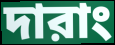
দারাং